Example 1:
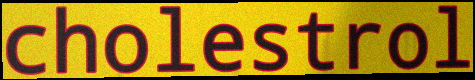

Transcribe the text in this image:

cholestrol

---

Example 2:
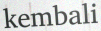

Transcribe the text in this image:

kembali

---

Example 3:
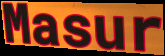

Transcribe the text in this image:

Masur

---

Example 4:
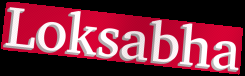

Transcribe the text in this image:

Loksabha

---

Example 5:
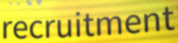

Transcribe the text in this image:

recruitment